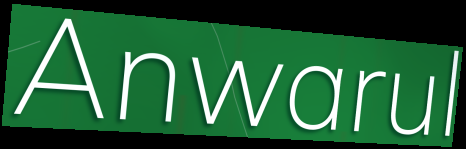
Anwarul